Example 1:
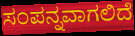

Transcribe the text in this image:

ಸಂಪನ್ನವಾಗಲಿದೆ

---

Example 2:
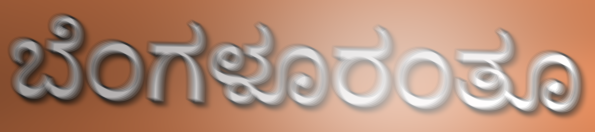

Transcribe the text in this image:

ಬೆಂಗಳೂರಂತೂ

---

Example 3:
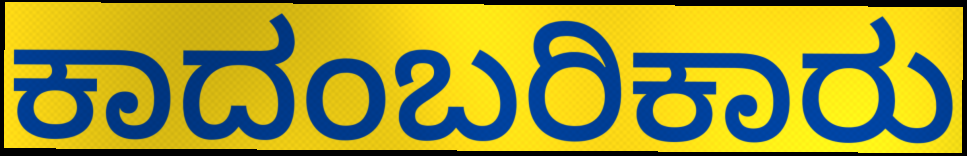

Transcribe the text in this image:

ಕಾದಂಬರಿಕಾರು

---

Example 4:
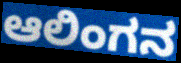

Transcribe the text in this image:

ಆಲಿಂಗನ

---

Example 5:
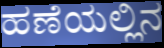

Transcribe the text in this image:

ಹಣೆಯಲ್ಲಿನ